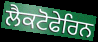
ਲੈਕਟੋਫੇਰਿਨ